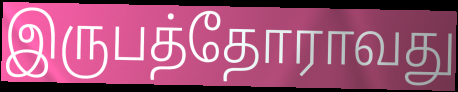
இருபத்தோராவது